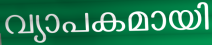
വ്യാപകമായി